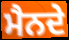
ਮੈਨਦੇ